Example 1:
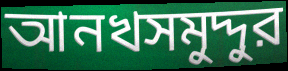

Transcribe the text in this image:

আনখসমুদ্দুর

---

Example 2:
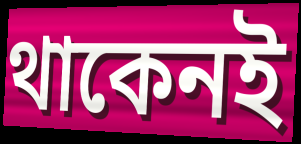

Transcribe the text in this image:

থাকেনই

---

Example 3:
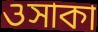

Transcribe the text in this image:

ওসাকা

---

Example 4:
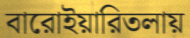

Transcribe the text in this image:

বারোইয়ারিতলায়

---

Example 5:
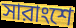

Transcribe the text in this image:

সারাংশে